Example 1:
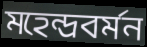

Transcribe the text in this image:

মহেন্দ্রবর্মন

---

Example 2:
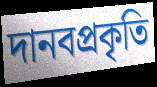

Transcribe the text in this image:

দানবপ্রকৃতি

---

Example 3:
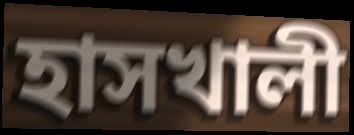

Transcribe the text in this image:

হাসখালী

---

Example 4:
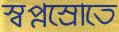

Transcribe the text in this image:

স্বপ্নস্রোতে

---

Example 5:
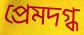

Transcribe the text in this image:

প্রেমদগ্ধ